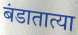
बंडातात्या